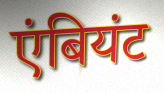
एंबियंट